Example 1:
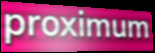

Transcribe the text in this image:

proximum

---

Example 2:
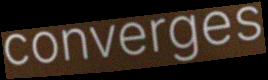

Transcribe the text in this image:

converges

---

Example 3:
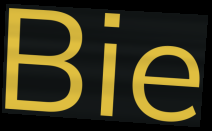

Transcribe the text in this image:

Bie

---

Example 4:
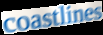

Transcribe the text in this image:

coastlines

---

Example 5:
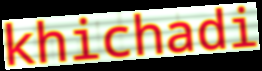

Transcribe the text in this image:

khichadi